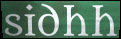
sidhh